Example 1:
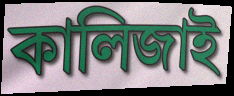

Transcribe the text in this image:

কালিজাই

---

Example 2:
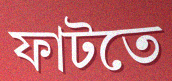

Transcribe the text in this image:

ফাটতে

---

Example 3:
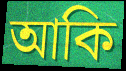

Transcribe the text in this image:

আকি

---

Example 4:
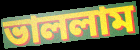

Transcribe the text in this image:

ভাললাম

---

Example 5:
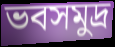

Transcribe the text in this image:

ভবসমুদ্র